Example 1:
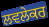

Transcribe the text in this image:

ਲਵਲੇਕਰ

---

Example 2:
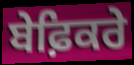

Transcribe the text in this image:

ਬੇਫ਼ਿਕਰੇ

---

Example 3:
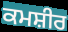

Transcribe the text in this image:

ਕਮਸ਼ੀਰ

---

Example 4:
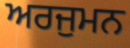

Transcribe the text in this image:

ਅਰਜੁਮਨ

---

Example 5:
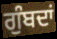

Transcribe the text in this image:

ਗੁੰਬਦਾਂ